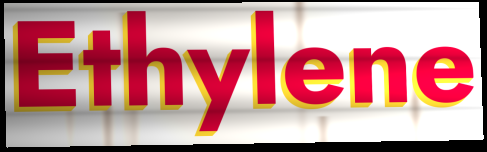
Ethylene